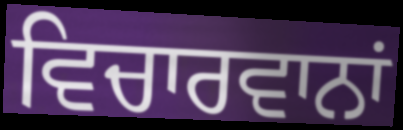
ਵਿਚਾਰਵਾਨਾਂ